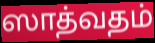
ஸாத்வதம்